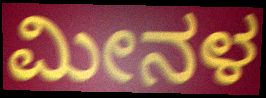
ಮೀನಳ